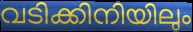
വടിക്കിനിയിലും